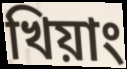
খিয়াং